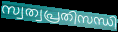
സ്വത്വപ്രതിസന്ധി